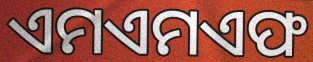
ଏମଏମଏଫ